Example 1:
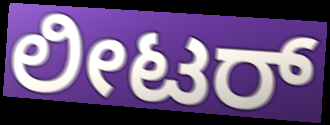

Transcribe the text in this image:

ಲೀಟರ್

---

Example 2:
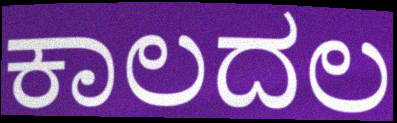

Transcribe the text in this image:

ಕಾಲದಲ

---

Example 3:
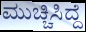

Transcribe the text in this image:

ಮುಚ್ಚಿಸಿದ್ದೆ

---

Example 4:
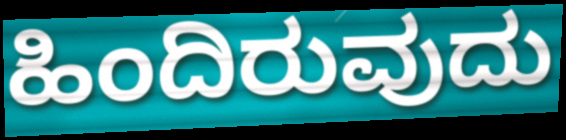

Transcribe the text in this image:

ಹಿಂದಿರುವುದು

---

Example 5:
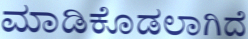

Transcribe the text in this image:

ಮಾಡಿಕೊಡಲಾಗಿದೆ